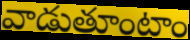
వాడుతూంటాం